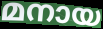
മനായ